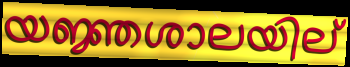
യജ്ഞശാലയില്